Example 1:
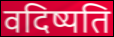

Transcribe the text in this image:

वदिष्यति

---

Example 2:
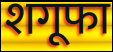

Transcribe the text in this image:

शगूफा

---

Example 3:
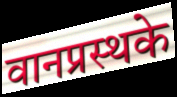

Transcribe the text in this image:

वानप्रस्थके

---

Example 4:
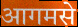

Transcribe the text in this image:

आगमसे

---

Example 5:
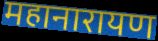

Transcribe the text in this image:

महानारायण